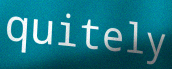
quitely